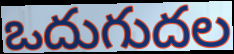
ఒదుగుదల